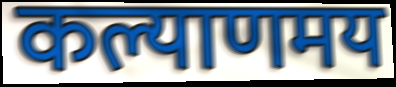
कल्याणमय